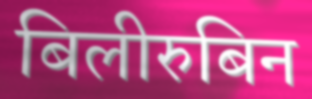
बिलीरुबिन